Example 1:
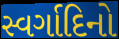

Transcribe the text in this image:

સ્વર્ગાદિનો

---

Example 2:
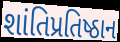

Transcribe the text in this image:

શાંતિપ્રતિષ્ઠાન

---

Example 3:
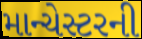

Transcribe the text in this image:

માન્ચેસ્ટરની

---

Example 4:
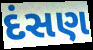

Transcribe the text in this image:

દંસણ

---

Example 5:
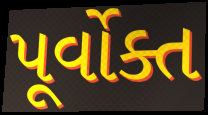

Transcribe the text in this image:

પૂર્વોક્ત